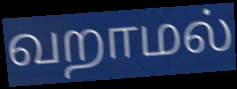
வறாமல்